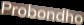
Probondho